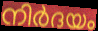
നിർദയം